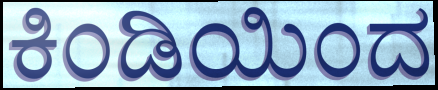
ಕಿಂಡಿಯಿಂದ